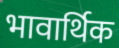
भावार्थिक